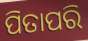
ପିତାପରି